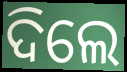
ଦିଲେ